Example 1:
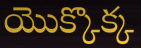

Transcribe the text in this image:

యొక్కొక్క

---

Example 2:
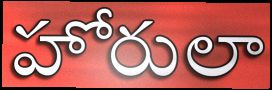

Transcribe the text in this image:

హోరులా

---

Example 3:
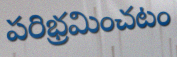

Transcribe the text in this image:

పరిభ్రమించటం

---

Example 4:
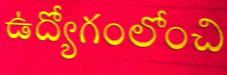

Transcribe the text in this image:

ఉద్యోగంలోంచి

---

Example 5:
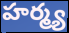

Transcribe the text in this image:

హర్మ్య